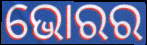
ଭୋରର